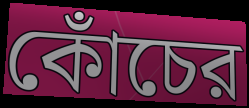
কোঁচের